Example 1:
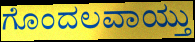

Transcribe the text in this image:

ಗೊಂದಲವಾಯ್ತು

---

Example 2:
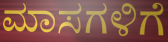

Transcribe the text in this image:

ಮಾಸಗಳಿಗೆ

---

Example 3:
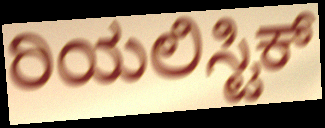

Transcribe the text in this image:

ರಿಯಲಿಸ್ಟಿಕ್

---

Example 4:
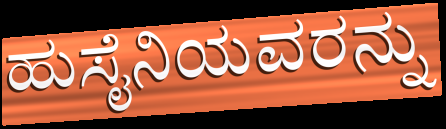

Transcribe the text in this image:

ಹುಸೈನಿಯವರನ್ನು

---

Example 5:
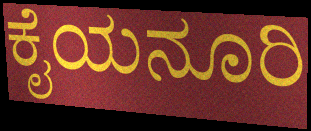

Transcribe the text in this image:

ಕೈಯನೂರಿ